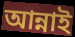
আন্নাই